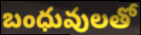
బంధువులతో